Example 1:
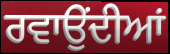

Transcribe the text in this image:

ਰਵਾਉਂਦੀਆਂ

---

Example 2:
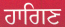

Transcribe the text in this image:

ਹਾਗਿਣ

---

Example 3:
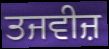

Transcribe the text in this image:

ਤਜਵੀਜ਼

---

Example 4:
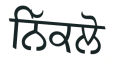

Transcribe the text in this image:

ਨਿੱਕਲੋ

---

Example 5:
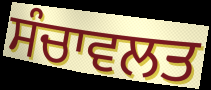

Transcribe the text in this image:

ਸੰਚਾਵਲਤ